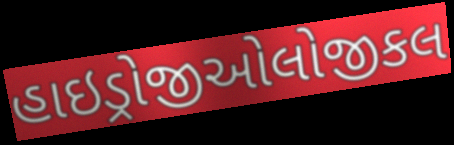
હાઇડ્રોજીઓલોજીકલ